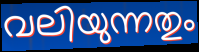
വലിയുന്നതും